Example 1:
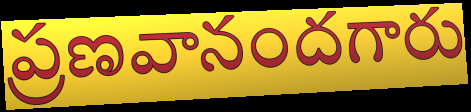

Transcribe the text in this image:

ప్రణవానందగారు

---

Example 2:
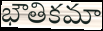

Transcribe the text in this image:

భౌతికమా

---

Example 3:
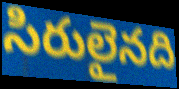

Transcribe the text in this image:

సిరులైనది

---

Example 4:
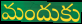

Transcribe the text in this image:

మందుకు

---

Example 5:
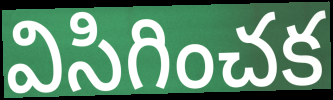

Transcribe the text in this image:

విసిగించక